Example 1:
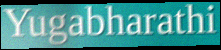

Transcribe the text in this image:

Yugabharathi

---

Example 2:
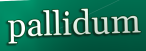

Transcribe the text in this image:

pallidum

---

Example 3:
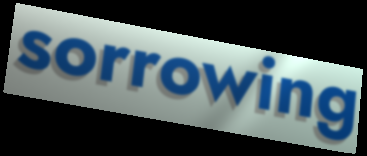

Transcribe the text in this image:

sorrowing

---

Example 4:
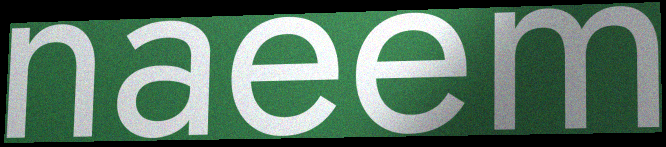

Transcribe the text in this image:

naeem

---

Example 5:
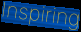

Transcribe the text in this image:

Inspiring